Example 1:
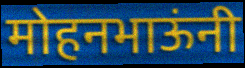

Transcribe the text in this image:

मोहनभाऊंनी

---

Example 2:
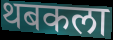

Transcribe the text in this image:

थबकला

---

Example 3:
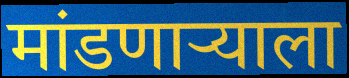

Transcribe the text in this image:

मांडणाऱ्याला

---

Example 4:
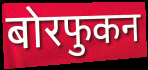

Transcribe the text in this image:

बोरफुकन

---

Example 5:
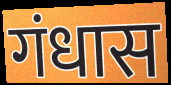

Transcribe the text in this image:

गंधास